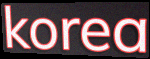
korea